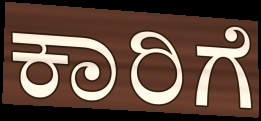
ಕಾರಿಗೆ